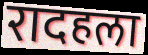
रादहला